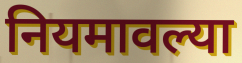
नियमावल्या